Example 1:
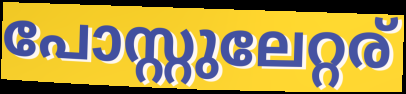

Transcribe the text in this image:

പോസ്റ്റുലേറ്റര്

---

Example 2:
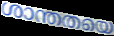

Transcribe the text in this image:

ശാന്തതയെ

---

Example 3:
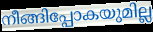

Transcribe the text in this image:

നീങ്ങിപ്പോകയുമില്ല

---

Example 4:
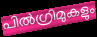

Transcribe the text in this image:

പിൽഗ്രിമുകളും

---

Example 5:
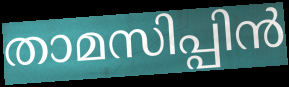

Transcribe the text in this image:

താമസിപ്പിൻ